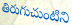
తిరుగుచుంటిని